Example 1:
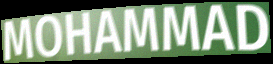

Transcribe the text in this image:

MOHAMMAD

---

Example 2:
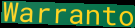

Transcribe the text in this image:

Warranto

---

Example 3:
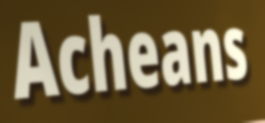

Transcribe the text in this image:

Acheans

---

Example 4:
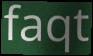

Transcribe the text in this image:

faqt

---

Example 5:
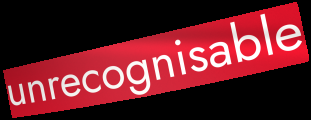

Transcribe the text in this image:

unrecognisable